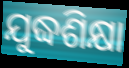
ଯୁଦ୍ଧଶିକ୍ଷା